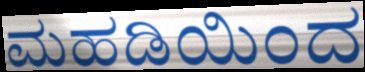
ಮಹಡಿಯಿಂದ